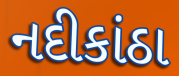
નદીકાંઠા